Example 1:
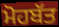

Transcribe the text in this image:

ਮੋਹਬੱਤ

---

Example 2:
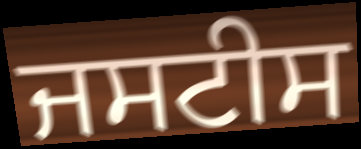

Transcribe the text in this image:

ਜਸਟੀਸ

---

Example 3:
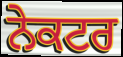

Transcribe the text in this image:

ਨੇਕਟਰ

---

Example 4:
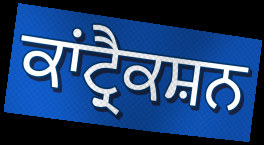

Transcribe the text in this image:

ਕਾਂਟ੍ਰੈਕਸ਼ਨ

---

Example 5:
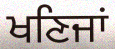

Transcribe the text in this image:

ਖਣਿਜਾਂ